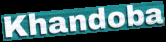
Khandoba